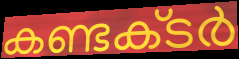
കണ്ടക്‌ടർ